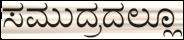
ಸಮುದ್ರದಲ್ಲೂ